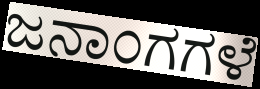
ಜನಾಂಗಗಳೆ